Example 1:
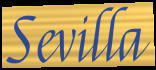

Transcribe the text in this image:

Sevilla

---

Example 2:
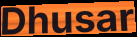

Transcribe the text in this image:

Dhusar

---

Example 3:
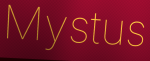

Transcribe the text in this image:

Mystus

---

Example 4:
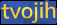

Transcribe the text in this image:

tvojih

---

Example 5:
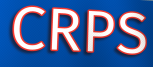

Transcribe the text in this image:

CRPS